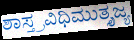
ಶಾಸ್ತ್ರವಿಧಿಮುತ್ಸೃಜ್ಯ